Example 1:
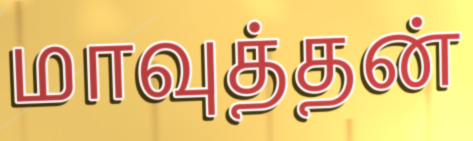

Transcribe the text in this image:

மாவுத்தன்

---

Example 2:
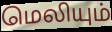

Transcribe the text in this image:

மெலியும்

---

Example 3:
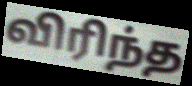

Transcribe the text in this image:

விரிந்த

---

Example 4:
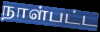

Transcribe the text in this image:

நாள்பட்ட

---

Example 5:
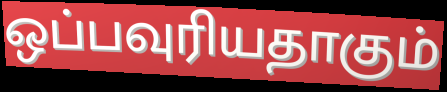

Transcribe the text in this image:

ஒப்பவுரியதாகும்